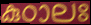
കുഠാലഃ